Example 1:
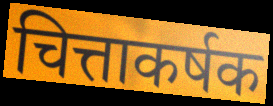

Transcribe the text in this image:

चित्ताकर्षक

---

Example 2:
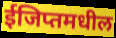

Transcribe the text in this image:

ईजिप्तमधील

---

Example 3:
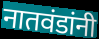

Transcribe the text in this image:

नातवंडांनी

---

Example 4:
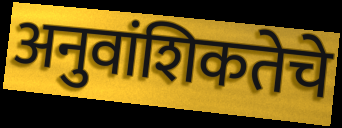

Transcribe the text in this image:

अनुवांशिकतेचे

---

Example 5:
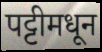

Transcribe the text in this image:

पट्टीमधून